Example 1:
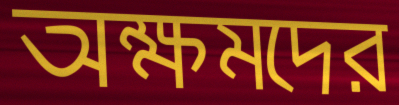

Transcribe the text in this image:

অক্ষমদের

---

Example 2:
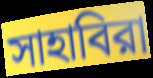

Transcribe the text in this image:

সাহাবিরা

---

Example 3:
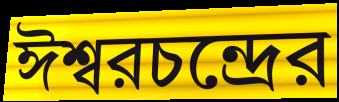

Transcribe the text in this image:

ঈশ্বরচন্দ্রের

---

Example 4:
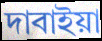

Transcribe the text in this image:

দাবাইয়া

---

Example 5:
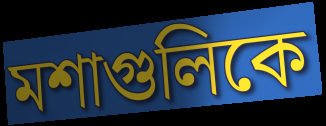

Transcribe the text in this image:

মশাগুলিকে